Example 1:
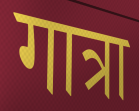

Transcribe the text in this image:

गात्रा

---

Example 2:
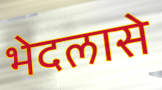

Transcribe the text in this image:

भेदलासे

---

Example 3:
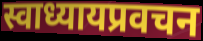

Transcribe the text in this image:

स्वाध्यायप्रवचन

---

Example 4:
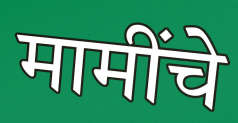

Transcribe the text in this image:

मामींचे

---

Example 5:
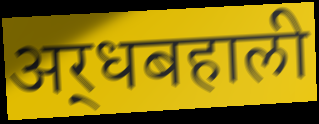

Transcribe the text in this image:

अर्धबहाली